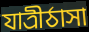
যাত্রীঠাসা